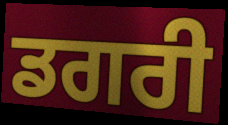
ਡਗਰੀ